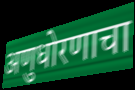
अणुधोरणाचा